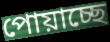
পোয়াচ্ছে